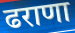
ढराणा